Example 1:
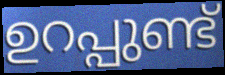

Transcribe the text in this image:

ഉറപ്പുണ്ട്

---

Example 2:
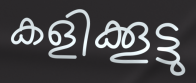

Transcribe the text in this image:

കളിക്കൂട്ടു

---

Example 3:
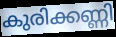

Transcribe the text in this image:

കുരിക്കണ്ണി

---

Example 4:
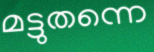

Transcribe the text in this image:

മട്ടുതന്നെ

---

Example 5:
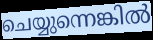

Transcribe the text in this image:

ചെയ്യുന്നെങ്കിൽ